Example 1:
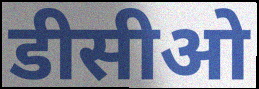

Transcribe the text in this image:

डीसीओ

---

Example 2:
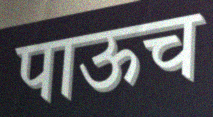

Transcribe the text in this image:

पाऊच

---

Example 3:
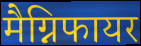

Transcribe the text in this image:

मैग्निफायर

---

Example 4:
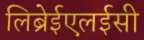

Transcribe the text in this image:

लिब्रेईएलईसी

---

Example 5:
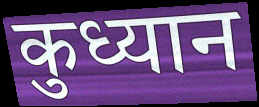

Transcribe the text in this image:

कुध्यान